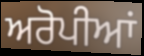
ਅਰੋਪੀਆਂ